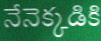
నేనెక్కడికి